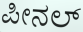
ಪೀನಲ್